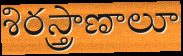
శిరస్త్రాణాలూ